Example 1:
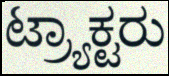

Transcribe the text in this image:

ಟ್ರ್ಯಾಕ್ಟರು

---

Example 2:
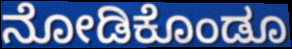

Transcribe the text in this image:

ನೋಡಿಕೊಂಡೂ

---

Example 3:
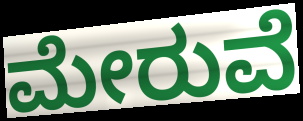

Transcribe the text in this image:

ಮೇರುವೆ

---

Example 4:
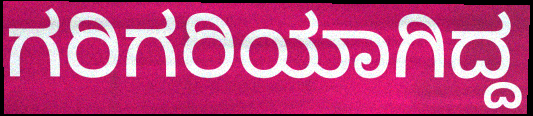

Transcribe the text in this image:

ಗರಿಗರಿಯಾಗಿದ್ದ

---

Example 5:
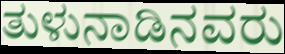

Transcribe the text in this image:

ತುಳುನಾಡಿನವರು